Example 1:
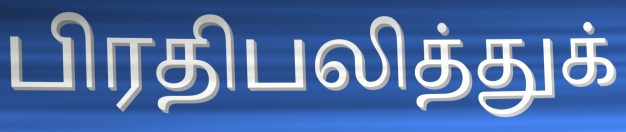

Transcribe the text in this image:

பிரதிபலித்துக்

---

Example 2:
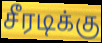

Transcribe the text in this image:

சீரடிக்கு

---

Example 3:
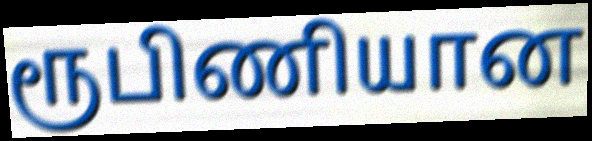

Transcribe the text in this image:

ரூபிணியான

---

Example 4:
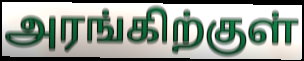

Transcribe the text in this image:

அரங்கிற்குள்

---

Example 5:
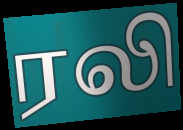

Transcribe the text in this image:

ரலி